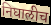
निघालीच